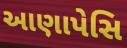
આણાપેસિ